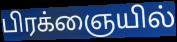
பிரக்ஞையில்